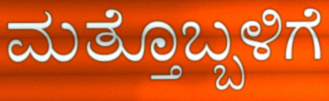
ಮತ್ತೊಬ್ಬಳಿಗೆ